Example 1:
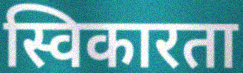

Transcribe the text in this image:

स्विकारता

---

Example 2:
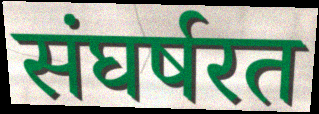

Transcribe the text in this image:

संघर्षरत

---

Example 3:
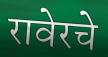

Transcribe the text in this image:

रावेरचे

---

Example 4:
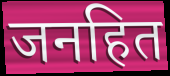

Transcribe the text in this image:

जनहित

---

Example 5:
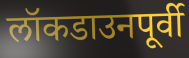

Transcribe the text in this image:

लॉकडाउनपूर्वी